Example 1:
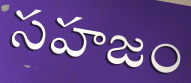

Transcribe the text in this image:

సహజం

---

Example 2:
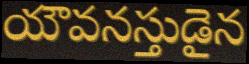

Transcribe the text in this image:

యౌవనస్తుడైన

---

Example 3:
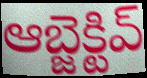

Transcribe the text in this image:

ఆబ్జెక్టివ్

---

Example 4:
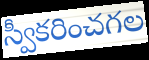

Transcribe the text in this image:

స్వీకరించగల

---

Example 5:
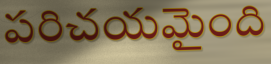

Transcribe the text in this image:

పరిచయమైంది